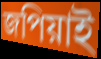
জপিয়াই